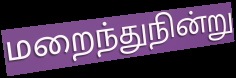
மறைந்துநின்று